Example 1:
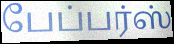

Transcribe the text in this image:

பேப்பர்ஸ்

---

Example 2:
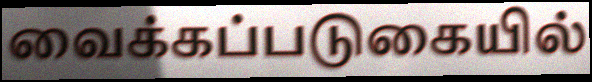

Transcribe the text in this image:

வைக்கப்படுகையில்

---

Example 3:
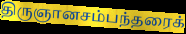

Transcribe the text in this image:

திருஞானசம்பந்தரைக்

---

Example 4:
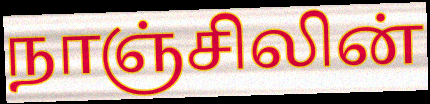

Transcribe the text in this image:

நாஞ்சிலின்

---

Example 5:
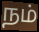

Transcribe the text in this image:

நம்